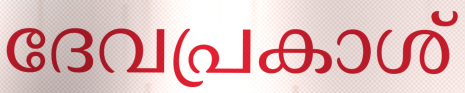
ദേവപ്രകാശ്